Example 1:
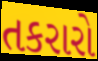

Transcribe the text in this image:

તકરારો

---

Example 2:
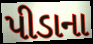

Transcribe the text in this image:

પીડાના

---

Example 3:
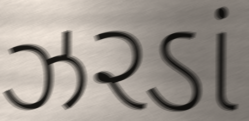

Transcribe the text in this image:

ઝરડાં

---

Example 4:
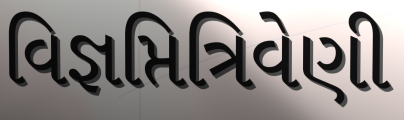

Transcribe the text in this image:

વિજ્ઞપ્તિત્રિવેણી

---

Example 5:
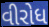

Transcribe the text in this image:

વીરોધ